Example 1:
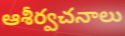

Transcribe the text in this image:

ఆశీర్వచనాలు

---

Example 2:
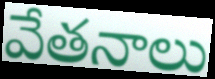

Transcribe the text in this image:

వేతనాలు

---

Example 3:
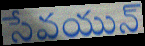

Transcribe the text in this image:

సేవయున్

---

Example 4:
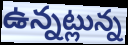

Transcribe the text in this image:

ఉన్నట్లున్న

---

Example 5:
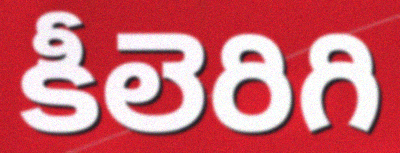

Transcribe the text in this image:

కీలెరిగి